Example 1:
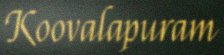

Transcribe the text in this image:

Koovalapuram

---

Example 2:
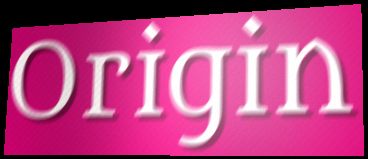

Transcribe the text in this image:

Origin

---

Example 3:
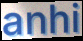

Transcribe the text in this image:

anhi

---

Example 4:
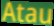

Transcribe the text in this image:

Atau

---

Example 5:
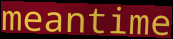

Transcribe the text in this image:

meantime